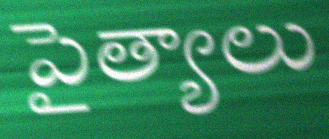
పైత్యాలు